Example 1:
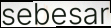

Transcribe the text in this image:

sebesar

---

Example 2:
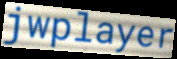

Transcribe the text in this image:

jwplayer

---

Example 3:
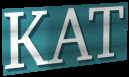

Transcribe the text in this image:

KAT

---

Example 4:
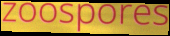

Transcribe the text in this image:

zoospores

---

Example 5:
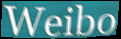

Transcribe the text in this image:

Weibo